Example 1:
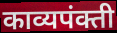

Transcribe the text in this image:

काव्यपंक्ती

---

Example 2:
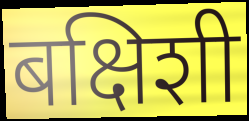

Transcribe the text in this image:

बक्षिशी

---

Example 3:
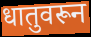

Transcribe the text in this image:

धातुवरून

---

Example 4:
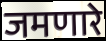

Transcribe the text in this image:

जमणारे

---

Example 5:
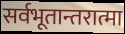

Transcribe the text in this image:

सर्वभूतान्तरात्मा